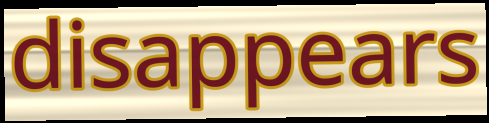
disappears